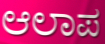
ಆಲಾಪ